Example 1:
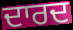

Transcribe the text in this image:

ਦਾਰਦ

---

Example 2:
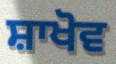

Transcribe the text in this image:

ਸ਼ਾਖੋਵ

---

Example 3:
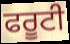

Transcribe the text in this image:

ਫਰੂਟੀ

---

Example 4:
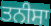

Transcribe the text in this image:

ਤਨੀਸਾ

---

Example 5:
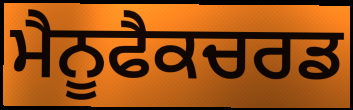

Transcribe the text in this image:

ਮੈਨੂਫੈਕਚਰਡ